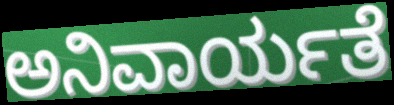
ಅನಿವಾರ್ಯತೆ